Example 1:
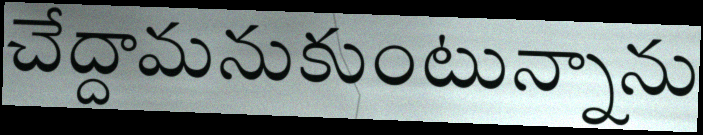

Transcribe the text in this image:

చేద్దామనుకుంటున్నాను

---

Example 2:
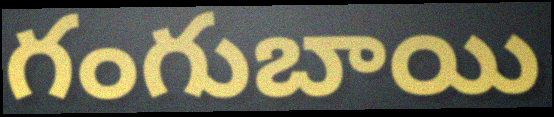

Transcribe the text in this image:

గంగుబాయి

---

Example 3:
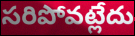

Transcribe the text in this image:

సరిపోవట్లేదు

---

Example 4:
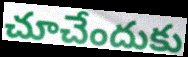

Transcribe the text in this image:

చూచేందుకు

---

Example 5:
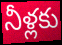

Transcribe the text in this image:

నీళ్లకు